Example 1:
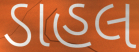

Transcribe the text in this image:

ડાહલ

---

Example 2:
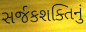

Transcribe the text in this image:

સર્જકશક્તિનું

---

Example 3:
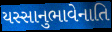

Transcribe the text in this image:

યસ્સાનુભાવેનાતિ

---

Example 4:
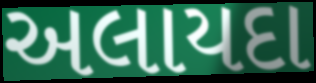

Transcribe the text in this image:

અલાયદા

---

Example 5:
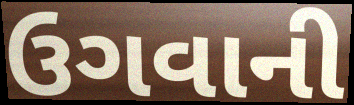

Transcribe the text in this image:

ઉગવાની